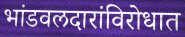
भांडवलदारांविरोधात